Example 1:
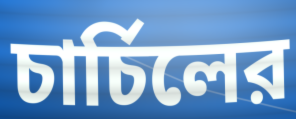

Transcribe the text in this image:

চার্চিলের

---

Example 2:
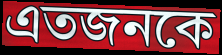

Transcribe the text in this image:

এতজনকে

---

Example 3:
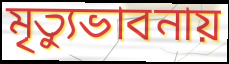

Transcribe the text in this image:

মৃত্যুভাবনায়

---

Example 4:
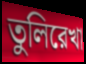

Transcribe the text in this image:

তুলিরেখা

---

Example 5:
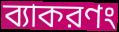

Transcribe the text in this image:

ব্যাকরণং